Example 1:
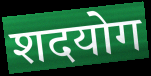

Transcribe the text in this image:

शदयोग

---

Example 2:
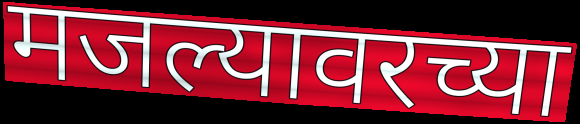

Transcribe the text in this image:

मजल्यावरच्या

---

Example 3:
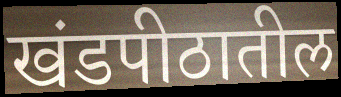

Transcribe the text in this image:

खंडपीठातील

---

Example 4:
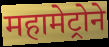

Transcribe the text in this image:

महामेट्रोने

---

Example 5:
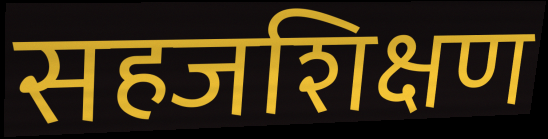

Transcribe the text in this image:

सहजशिक्षण